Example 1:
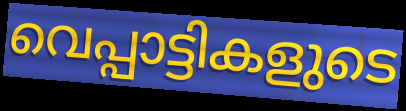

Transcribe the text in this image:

വെപ്പാട്ടികളുടെ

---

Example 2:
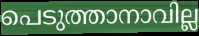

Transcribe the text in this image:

പെടുത്താനാവില്ല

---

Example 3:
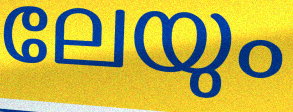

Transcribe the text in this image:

ലേയും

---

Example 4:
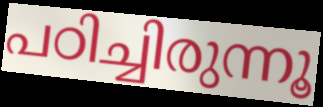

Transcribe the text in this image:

പഠിച്ചിരുന്നൂ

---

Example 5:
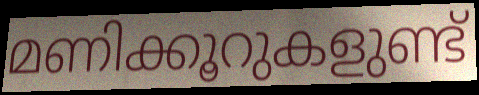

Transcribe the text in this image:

മണിക്കൂറുകളുണ്ട്